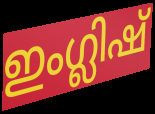
ഇംഗ്ലിഷ്